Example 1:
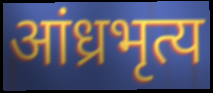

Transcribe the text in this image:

आंध्रभृत्य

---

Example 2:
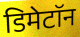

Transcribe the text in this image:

डिमेटॉन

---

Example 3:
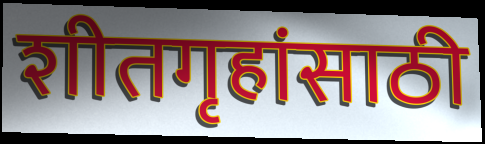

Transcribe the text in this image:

शीतगृहांसाठी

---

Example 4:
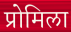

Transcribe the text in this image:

प्रोमिला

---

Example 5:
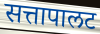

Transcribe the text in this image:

सत्तापालट